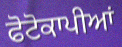
ਫੋਟੋਕਾਪੀਆਂ